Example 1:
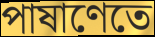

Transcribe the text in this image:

পাষাণেতে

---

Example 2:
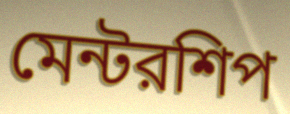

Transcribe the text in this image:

মেন্টরশিপ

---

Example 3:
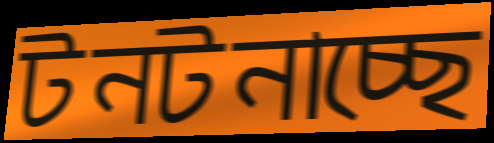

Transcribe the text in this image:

টনটনাচ্ছে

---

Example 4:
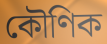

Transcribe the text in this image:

কৌণিক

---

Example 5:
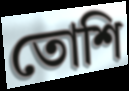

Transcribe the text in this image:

তোশি